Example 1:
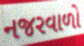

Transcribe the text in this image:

નજરવાળો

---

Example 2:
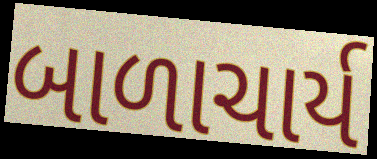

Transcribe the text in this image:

બાળાચાર્ય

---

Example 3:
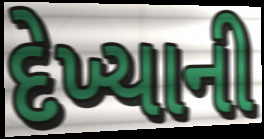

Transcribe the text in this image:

દેખ્યાની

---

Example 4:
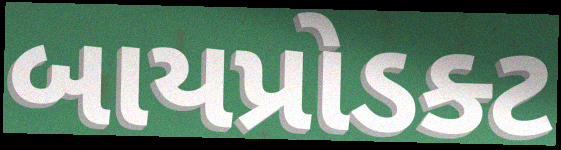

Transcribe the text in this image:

બાયપ્રોડક્ટ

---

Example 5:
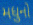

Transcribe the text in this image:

મધુનો